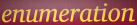
enumeration